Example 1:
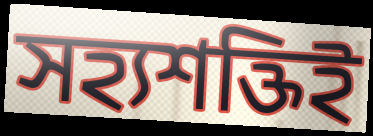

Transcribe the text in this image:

সহ্যশক্তিই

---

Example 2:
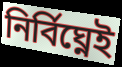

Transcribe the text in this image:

নির্বিঘ্নেই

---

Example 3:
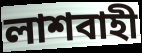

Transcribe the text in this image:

লাশবাহী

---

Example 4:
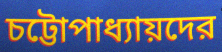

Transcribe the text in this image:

চট্টোপাধ্যায়দের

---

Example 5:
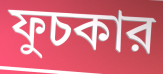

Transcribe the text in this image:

ফুচকার